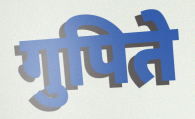
गुपिते